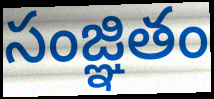
సంజ్ఞితం